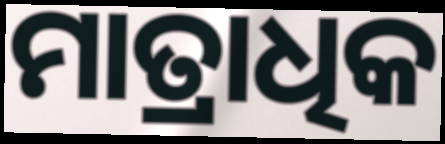
ମାତ୍ରାଧିକ